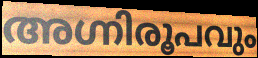
അഗ്നിരൂപവും